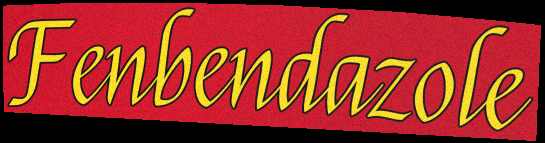
Fenbendazole